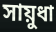
সায়ুধা